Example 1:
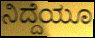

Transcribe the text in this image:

ನಿದ್ದೆಯೂ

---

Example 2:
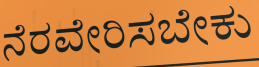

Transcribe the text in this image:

ನೆರವೇರಿಸಬೇಕು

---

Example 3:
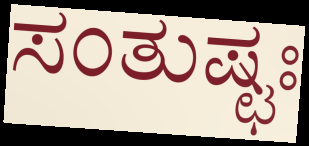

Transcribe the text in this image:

ಸಂತುಷ್ಟಃ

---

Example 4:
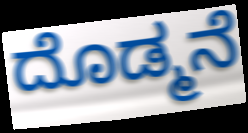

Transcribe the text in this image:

ದೊಡ್ಮನೆ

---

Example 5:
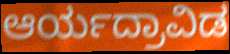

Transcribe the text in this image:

ಆರ್ಯದ್ರಾವಿಡ